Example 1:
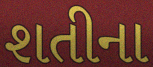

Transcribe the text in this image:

શતીના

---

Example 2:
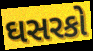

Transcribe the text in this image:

ઘસરકો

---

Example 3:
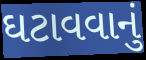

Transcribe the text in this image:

ઘટાવવાનું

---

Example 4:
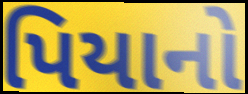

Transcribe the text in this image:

પિયાનો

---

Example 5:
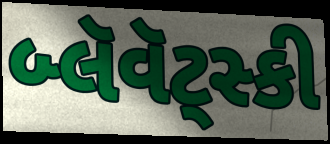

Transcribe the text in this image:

બ્લૅવૅટ્સ્કી